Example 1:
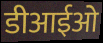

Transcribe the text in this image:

डीआईओ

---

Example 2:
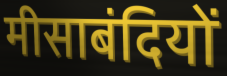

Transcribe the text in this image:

मीसाबंदियों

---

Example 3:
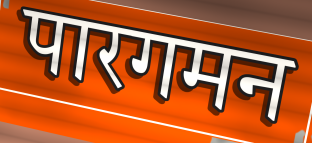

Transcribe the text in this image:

पारगमन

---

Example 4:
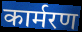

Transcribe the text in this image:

कार्मरण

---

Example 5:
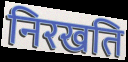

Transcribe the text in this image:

निरखति